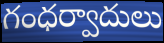
గంధర్వాదులు